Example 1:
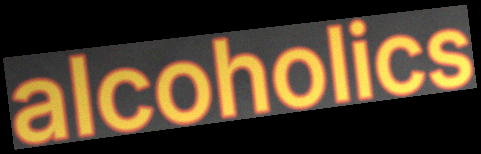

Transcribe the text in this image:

alcoholics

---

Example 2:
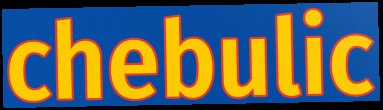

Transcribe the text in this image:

chebulic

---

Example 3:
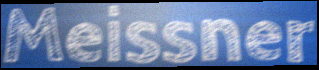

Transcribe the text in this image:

Meissner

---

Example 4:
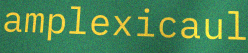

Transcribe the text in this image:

amplexicaul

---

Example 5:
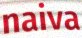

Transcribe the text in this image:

naiva